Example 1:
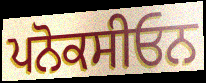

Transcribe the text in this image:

ਪਨੋਕਸੀਓਨ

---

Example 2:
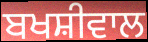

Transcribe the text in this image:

ਬਖਸ਼ੀਵਾਲ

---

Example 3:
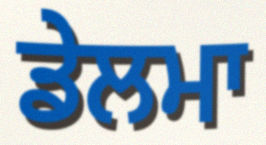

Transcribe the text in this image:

ਡੇਲਮਾ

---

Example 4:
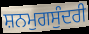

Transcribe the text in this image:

ਸ਼ਨਮੁਗਸੁੰਦਰੀ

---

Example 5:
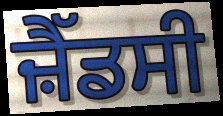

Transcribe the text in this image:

ਜ਼ੈੱਡਸੀ